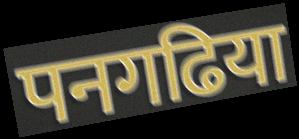
पनगढिया